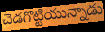
చెడగొట్టియున్నాడు